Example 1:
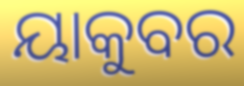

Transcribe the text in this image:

ୟାକୁବର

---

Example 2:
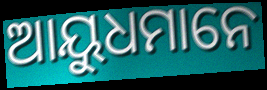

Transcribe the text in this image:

ଆୟୁଧମାନେ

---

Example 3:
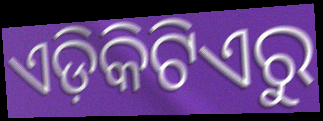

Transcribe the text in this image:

ଏଡ଼ିକିଟିଏରୁ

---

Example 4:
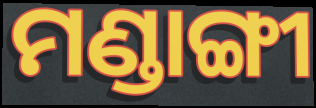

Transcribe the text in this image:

ମଣ୍ଡାଙ୍ଗୀ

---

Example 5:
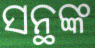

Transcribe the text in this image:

ସନ୍ଥଙ୍କ